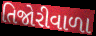
તિજોરીવાળા